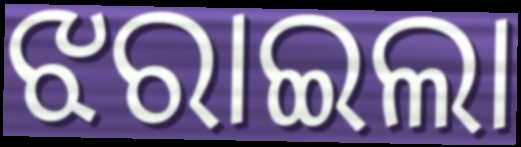
ଝରାଇଲା